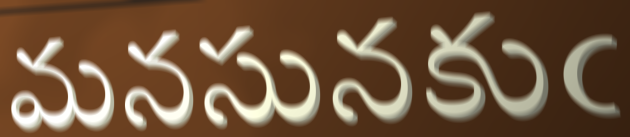
మనసునకుఁ